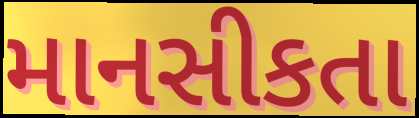
માનસીકતા